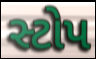
સ્ટોપ